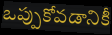
ఒప్పుకోవడానికీ